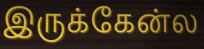
இருக்கேன்ல